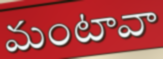
మంటావా